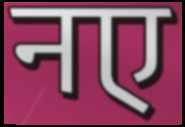
नए